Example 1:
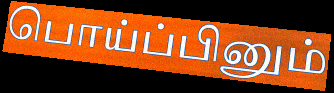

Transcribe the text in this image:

பொய்ப்பினும்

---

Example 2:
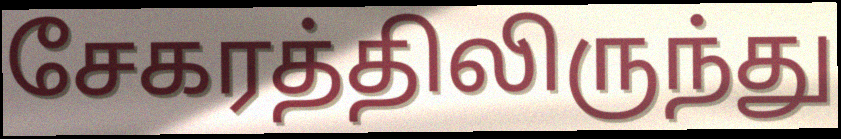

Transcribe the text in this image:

சேகரத்திலிருந்து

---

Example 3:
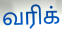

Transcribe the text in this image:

வரிக்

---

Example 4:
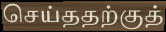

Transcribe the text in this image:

செய்ததற்குத்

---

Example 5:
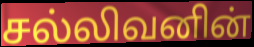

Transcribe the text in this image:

சல்லிவனின்